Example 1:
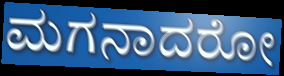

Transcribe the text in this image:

ಮಗನಾದರೋ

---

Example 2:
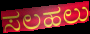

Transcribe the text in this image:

ಸಲಹಲು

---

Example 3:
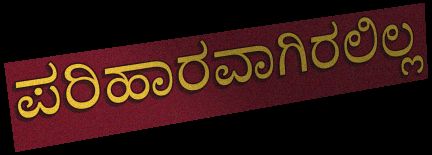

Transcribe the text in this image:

ಪರಿಹಾರವಾಗಿರಲಿಲ್ಲ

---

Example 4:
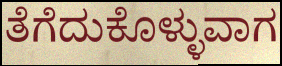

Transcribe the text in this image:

ತೆಗೆದುಕೊಳ್ಳುವಾಗ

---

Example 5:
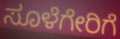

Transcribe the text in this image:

ಸೂಳೆಗೇರಿಗೆ